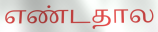
எண்டதால